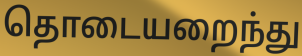
தொடையறைந்து